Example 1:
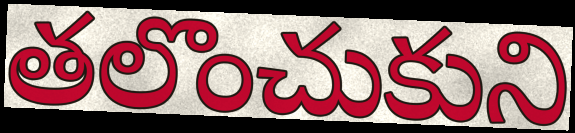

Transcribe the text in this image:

తలొంచుకుని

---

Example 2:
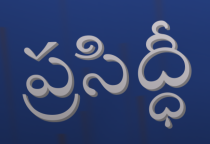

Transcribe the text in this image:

ప్రసిద్ధీ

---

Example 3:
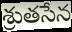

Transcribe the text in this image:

శ్రుతసేన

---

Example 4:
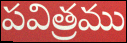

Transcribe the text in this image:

పవిత్రము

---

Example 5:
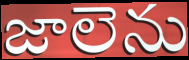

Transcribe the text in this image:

జాలెను